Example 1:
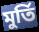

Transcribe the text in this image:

মুৰ্তি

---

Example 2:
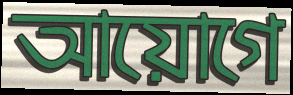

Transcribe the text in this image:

আয়োগে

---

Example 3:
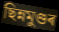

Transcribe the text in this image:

ছিন্নমুণ্ডৰ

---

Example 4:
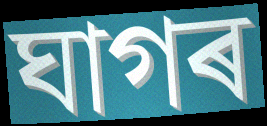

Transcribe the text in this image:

ঘাগৰ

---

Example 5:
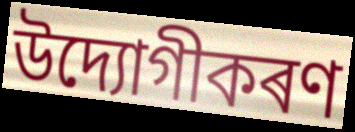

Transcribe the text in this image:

উদ্যোগীকৰণ